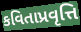
કવિતાપ્રવૃત્તિ